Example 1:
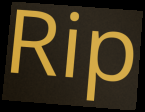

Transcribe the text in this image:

Rip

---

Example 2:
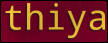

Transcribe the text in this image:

thiya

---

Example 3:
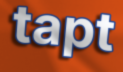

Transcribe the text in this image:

tapt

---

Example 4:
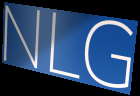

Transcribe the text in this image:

NLG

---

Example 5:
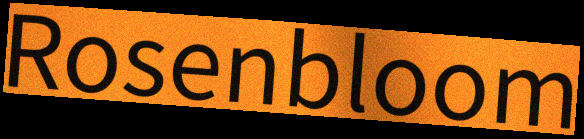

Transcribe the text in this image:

Rosenbloom